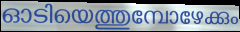
ഓടിയെത്തുമ്പോഴേക്കും